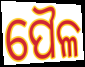
ପୈଳ